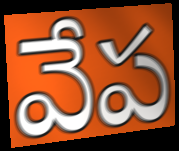
వేప